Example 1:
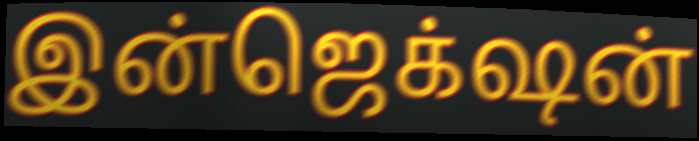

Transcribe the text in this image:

இன்ஜெக்‌ஷன்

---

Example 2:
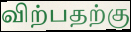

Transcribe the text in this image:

விற்பதற்கு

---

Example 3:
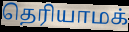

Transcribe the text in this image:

தெரியாமக்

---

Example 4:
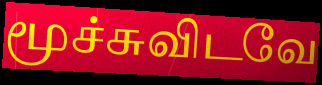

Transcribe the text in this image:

மூச்சுவிடவே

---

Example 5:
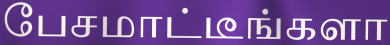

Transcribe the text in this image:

பேசமாட்டீங்களா